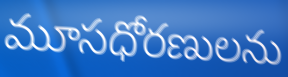
మూసధోరణులను